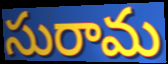
సురామ